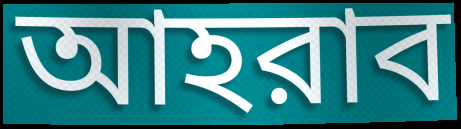
আহরাব